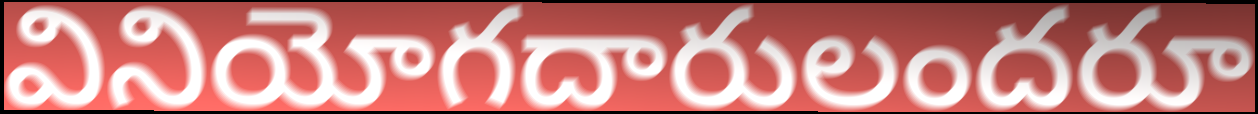
వినియోగదారులందరూ